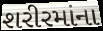
શરીરમાંના